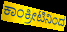
ಕಾಂಕ್ರೀಟಿನಿಂದ